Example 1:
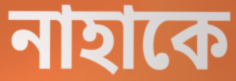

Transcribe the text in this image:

নাহাকে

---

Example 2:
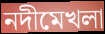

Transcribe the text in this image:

নদীমেখলা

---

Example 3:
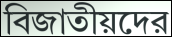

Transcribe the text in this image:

বিজাতীয়দের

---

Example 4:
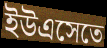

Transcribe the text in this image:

ইউএসেতে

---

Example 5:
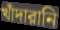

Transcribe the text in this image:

খাঁদারানি